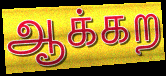
ஆக்கற